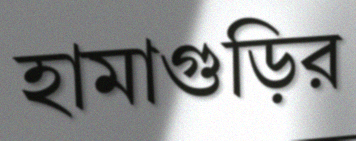
হামাগুড়ির